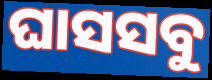
ଘାସସବୁ